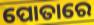
ପୋତାରେ